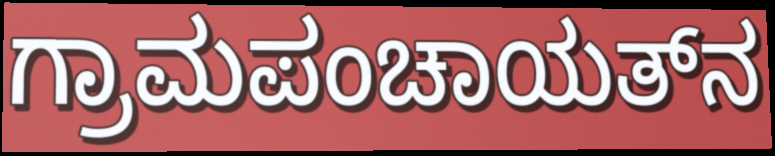
ಗ್ರಾಮಪಂಚಾಯತ್‌ನ